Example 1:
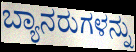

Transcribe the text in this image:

ಬ್ಯಾನರುಗಳನ್ನು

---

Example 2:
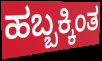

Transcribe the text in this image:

ಹಬ್ಬಕ್ಕಿಂತ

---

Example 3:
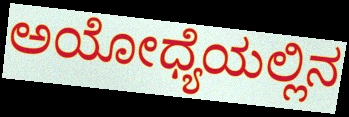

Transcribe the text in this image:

ಅಯೋಧ್ಯೆಯಲ್ಲಿನ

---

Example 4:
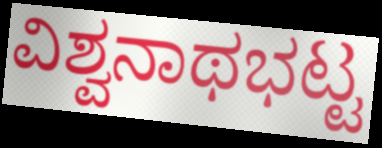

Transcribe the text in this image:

ವಿಶ್ವನಾಥಭಟ್ಟ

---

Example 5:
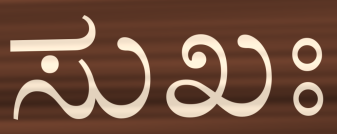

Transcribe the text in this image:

ಸುಖಃ